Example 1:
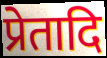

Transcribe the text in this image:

प्रेतादि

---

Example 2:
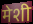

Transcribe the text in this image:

मेशी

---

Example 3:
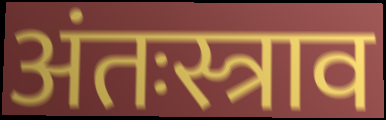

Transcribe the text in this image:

अंतःस्त्राव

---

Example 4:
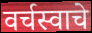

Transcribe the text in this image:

वर्चस्वाचे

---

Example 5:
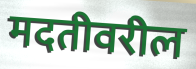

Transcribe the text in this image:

मदतीवरील